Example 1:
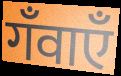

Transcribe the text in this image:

गँवाएँ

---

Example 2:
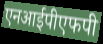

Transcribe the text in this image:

एनआईपीएफपी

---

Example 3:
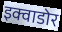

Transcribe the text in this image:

इक्वाडोर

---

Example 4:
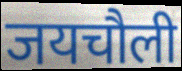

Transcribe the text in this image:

जयचौली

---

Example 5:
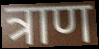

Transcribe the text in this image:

त्राण